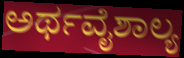
ಅರ್ಥವೈಶಾಲ್ಯ